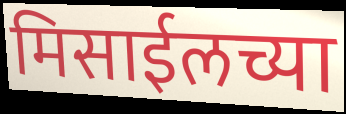
मिसाईलच्या